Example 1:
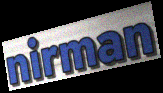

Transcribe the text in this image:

nirman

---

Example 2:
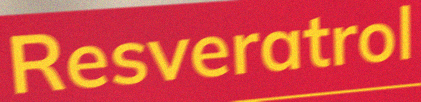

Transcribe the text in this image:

Resveratrol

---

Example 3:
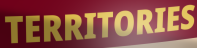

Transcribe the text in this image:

TERRITORIES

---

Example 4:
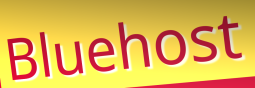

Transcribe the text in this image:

Bluehost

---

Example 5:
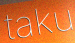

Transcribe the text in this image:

taku